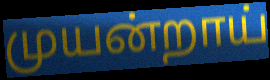
முயன்றாய்